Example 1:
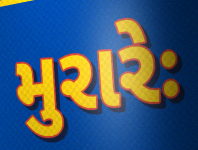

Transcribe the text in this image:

મુરારેઃ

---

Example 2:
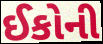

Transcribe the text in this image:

ઈકોની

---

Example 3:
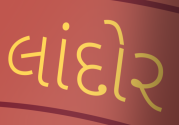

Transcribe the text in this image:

લાંદોર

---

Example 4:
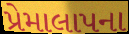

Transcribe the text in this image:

પ્રેમાલાપના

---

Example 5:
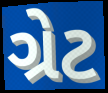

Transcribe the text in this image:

ગ્રેટ